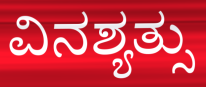
ವಿನಶ್ಯತ್ಸು